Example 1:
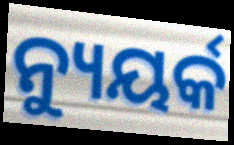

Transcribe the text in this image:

ନ୍ୟୁୟର୍କ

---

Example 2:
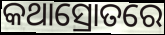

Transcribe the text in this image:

କଥାସ୍ରୋତରେ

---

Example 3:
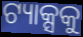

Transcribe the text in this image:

ଟ୍ୟାକ୍ସକୁ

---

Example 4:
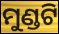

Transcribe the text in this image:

ମୁଣ୍ଡଟି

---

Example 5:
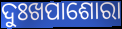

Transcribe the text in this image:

ଦୁଃଖପାଶୋରା